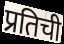
प्रतिची